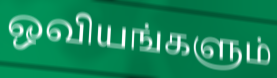
ஒவியங்களும்